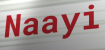
Naayi